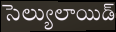
సెల్యులాయిడ్